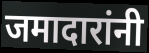
जमादारांनी